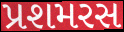
પ્રશમરસ